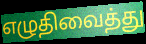
எழுதிவைத்து